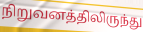
நிறுவனத்திலிருந்து